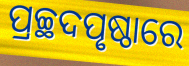
ପ୍ରଚ୍ଛଦପୃଷ୍ଠାରେ